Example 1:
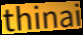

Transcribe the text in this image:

thinai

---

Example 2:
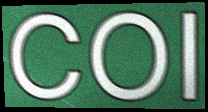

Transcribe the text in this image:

COI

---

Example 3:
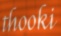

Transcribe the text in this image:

thooki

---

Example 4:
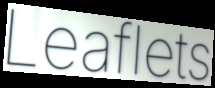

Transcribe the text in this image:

Leaflets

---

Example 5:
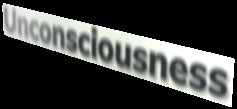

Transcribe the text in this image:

Unconsciousness